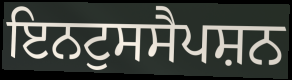
ਇਨਟੁਸਸੈਪਸ਼ਨ